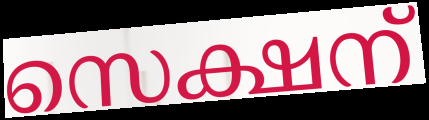
സെക്ഷന്